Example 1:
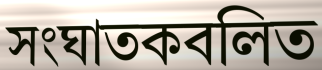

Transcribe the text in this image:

সংঘাতকবলিত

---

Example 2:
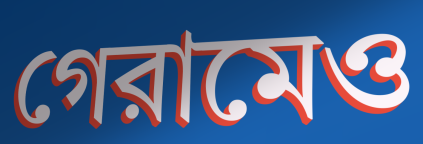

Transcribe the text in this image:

গেরামেও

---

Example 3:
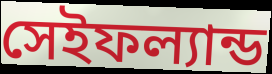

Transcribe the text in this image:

সেইফল্যান্ড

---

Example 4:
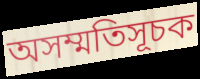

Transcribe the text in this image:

অসম্মতিসূচক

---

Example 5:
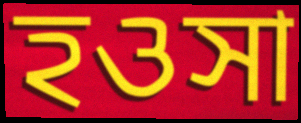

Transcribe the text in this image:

হওসা